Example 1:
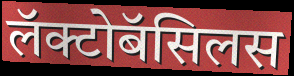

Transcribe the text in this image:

लॅक्टोबॅसिलस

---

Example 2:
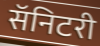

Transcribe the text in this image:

सॅनिटरी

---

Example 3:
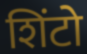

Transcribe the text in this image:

शिंटो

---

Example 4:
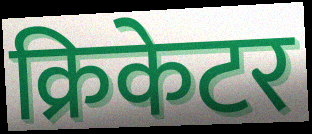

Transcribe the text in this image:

क्रिकेटर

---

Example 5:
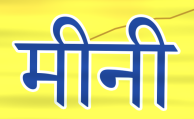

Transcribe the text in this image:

मीनी